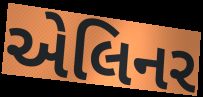
એલિનર